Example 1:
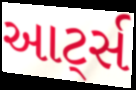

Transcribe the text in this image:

આટ્‌ર્સ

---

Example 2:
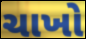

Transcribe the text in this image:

ચાખો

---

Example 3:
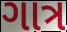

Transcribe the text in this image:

ગાત્ર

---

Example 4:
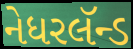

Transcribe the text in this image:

નેધરલૅન્ડ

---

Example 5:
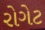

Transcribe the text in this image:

રોગેટ